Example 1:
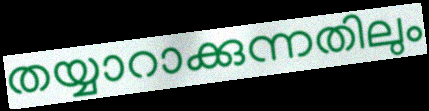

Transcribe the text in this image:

തയ്യാറാക്കുന്നതിലും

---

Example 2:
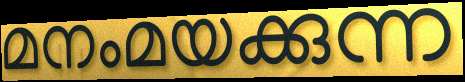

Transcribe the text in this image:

മനംമയക്കുന്ന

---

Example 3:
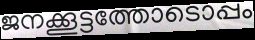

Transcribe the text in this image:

ജനക്കൂട്ടത്തോടൊപ്പം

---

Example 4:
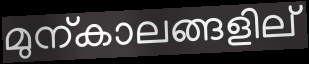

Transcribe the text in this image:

മുന്കാലങ്ങളില്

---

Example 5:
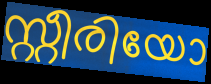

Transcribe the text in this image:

സ്റ്റീരിയോ